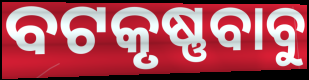
ବଟକୃଷ୍ଣବାବୁ